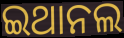
ଇଥାନଲ